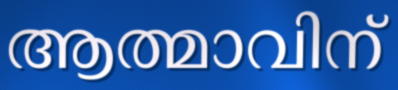
ആത്മാവിന്